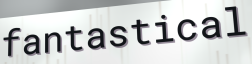
fantastical